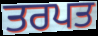
ਤਰਪਤ